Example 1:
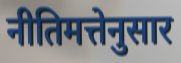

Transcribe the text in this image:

नीतिमत्तेनुसार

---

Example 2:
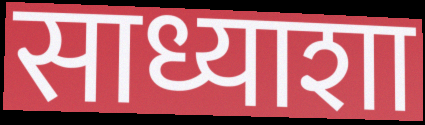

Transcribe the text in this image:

साध्याशा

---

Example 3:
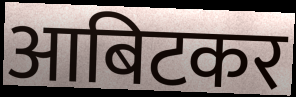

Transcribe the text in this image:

आबिटकर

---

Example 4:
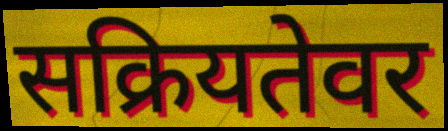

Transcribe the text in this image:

सक्रियतेवर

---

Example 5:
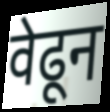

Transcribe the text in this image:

वेढून